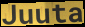
Juuta